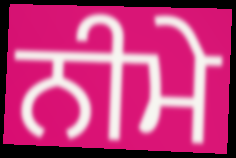
ਨੀਮੇ